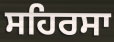
ਸਹਿਰਸਾ